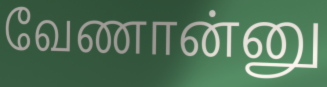
வேணான்னு